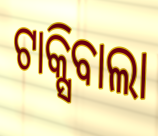
ଟାକ୍ସିବାଲା